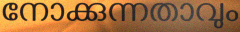
നോക്കുന്നതാവും